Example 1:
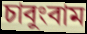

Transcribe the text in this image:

চাবুংবাম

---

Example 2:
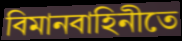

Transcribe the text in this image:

বিমানবাহিনীতে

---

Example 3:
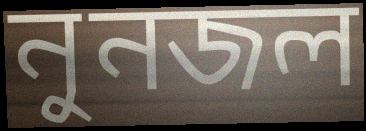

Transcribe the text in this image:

নুনজল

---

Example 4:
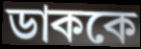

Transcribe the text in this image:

ডাককে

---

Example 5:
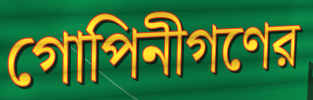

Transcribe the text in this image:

গোপিনীগণের